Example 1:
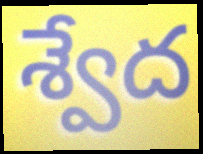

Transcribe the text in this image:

శ్వేద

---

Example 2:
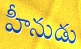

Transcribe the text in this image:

హీనుడు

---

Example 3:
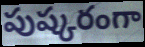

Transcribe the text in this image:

పుష్కరంగా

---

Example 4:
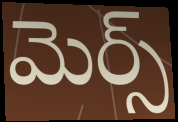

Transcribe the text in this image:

మెర్స్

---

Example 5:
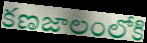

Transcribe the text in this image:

కణజాలంలోకి